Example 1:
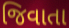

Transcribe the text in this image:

જિવાતા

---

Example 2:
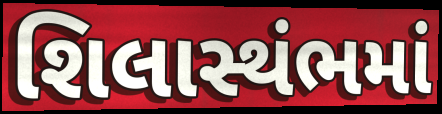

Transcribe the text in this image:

શિલાસ્થંભમાં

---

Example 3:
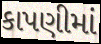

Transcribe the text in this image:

કાપણીમાં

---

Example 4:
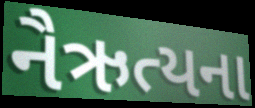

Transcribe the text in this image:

નૈઋત્યના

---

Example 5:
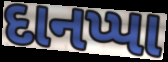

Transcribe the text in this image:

દાનપ્પા